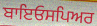
ਬਾਇਓਸਪਿਅਰ